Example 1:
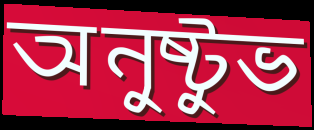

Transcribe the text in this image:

অনুষ্টুভ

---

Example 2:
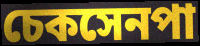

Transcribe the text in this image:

চেকসেনপা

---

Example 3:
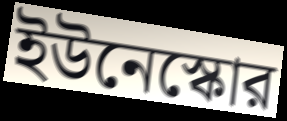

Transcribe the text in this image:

ইউনেস্কোর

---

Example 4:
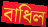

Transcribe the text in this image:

বাধিল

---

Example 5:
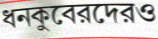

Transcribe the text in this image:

ধনকুবেরদেরও